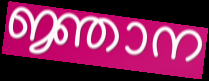
ജ്ഞാന